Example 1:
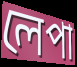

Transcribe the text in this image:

লেপা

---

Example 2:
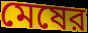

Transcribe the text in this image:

মেষের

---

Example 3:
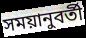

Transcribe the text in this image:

সময়ানুবর্তী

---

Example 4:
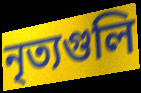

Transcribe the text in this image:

নৃত্যগুলি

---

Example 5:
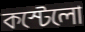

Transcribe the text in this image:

কস্টেলো